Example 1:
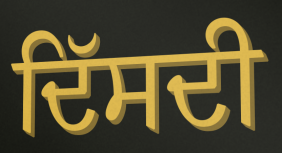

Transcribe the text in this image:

ਦਿੱਸਦੀ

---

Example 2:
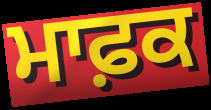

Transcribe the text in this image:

ਮਾਫ਼ਕ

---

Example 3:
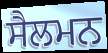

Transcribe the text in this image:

ਸੈਲਮਨ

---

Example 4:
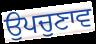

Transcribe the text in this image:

ਉਪਚੁਣਾਵ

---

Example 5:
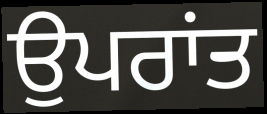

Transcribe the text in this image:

ਉਪਰਾਂਤ